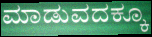
ಮಾಡುವದಕ್ಕೂ